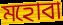
মহোবা